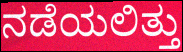
ನಡೆಯಲಿತ್ತು